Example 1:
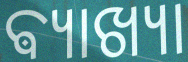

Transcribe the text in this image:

ଵ୍ଯାଖ୍ଯା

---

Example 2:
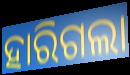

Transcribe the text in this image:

ହାରିଗଲା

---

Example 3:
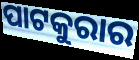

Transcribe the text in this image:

ପାଟକୁରାର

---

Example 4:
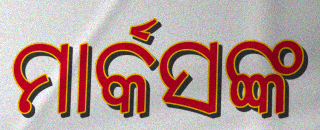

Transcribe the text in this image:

ମାର୍କସଙ୍କ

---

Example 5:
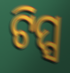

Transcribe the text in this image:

ଟିପ୍ସ